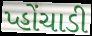
પ્હોંચાડી